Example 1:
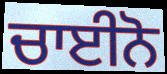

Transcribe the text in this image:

ਚਾਈਨੋ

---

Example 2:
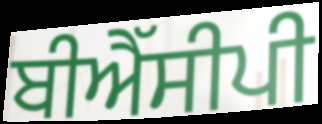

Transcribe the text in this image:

ਬੀਐੱਸੀਪੀ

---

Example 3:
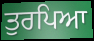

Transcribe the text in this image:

ਤੁਰਪਿਆ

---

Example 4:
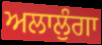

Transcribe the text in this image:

ਅਲਾਲੁੰਗਾ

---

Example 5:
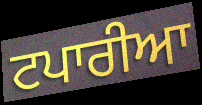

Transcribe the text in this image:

ਟਪਾਰੀਆ